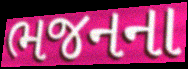
ભજનના